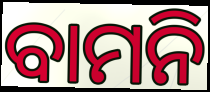
ବାମନି